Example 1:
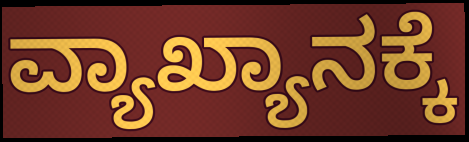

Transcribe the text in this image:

ವ್ಯಾಖ್ಯಾನಕ್ಕೆ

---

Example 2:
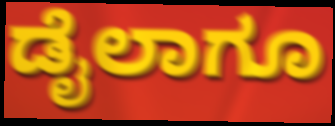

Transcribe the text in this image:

ಡೈಲಾಗೂ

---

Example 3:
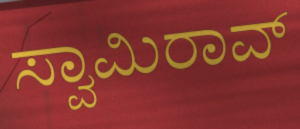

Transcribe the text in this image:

ಸ್ವಾಮಿರಾವ್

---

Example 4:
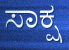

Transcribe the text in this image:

ಸಾಕ್ಷ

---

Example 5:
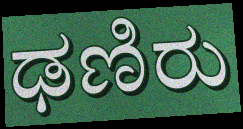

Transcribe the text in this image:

ಢಣಿರು